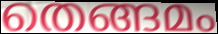
തെങ്ങമം